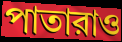
পাতারাও